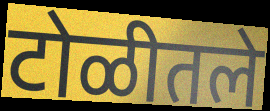
टोळीतले